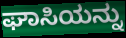
ಘಾಸಿಯನ್ನು